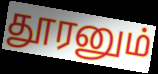
தூரனும்